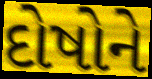
દોષોને